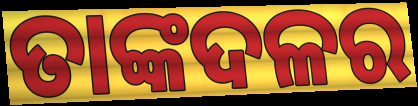
ତାଙ୍କଦଳର